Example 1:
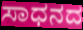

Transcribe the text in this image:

ಸಾಧನದ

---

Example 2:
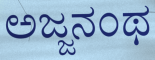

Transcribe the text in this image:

ಅಜ್ಜನಂಥ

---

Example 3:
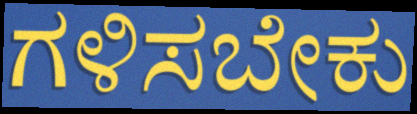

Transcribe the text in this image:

ಗಳಿಸಬೇಕು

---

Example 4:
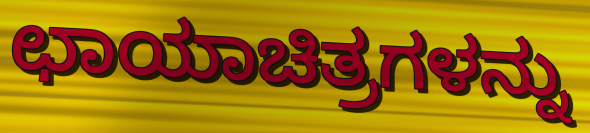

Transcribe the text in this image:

ಛಾಯಾಚಿತ್ರಗಳನ್ನು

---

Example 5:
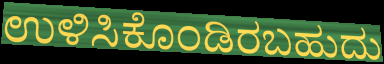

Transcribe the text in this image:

ಉಳಿಸಿಕೊಂಡಿರಬಹುದು